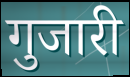
गुजारी